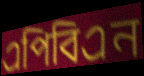
এপিবিএন